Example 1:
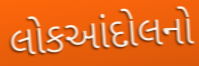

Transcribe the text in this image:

લોકઆંદોલનો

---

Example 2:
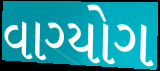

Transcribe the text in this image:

વાગ્યોગ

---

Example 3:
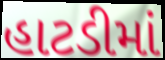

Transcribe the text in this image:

હાટડીમાં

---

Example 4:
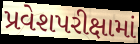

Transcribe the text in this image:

પ્રવેશપરીક્ષામાં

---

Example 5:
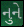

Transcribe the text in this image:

નુને